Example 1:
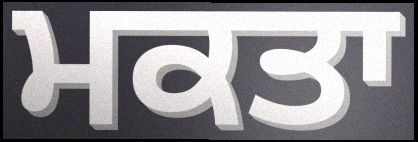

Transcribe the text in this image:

ਮਕਤਾ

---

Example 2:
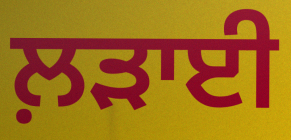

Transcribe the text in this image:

ਲ਼ੜਾਈ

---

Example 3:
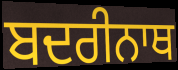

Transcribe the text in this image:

ਬਦਰੀਨਾਥ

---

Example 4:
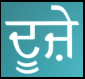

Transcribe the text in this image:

ਦੂਜ਼ੇ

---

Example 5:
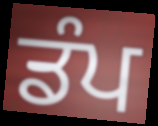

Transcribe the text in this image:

ਡੰਪ